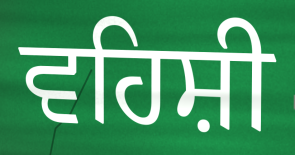
ਵਹਿਸ਼ੀ